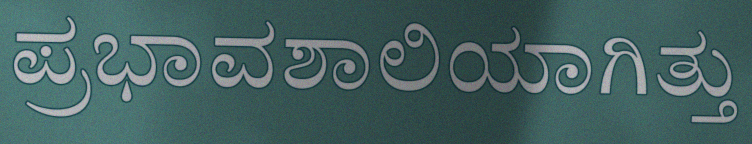
ಪ್ರಭಾವಶಾಲಿಯಾಗಿತ್ತು